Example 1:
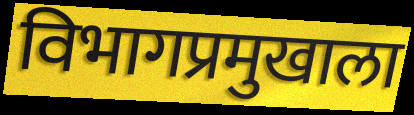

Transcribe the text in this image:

विभागप्रमुखाला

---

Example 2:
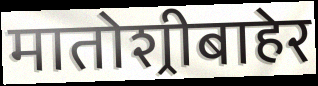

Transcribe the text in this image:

मातोश्रीबाहेर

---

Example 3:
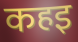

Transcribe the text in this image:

कहइ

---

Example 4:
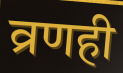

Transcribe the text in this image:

व्रणही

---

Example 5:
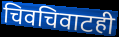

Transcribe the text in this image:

चिवचिवाटही